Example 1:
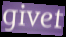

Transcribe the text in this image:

givet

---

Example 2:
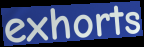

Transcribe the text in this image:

exhorts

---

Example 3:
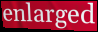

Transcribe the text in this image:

enlarged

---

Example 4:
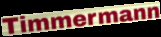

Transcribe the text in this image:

Timmermann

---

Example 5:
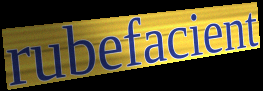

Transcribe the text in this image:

rubefacient